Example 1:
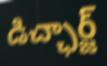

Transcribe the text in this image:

డిచ్ఛార్జ్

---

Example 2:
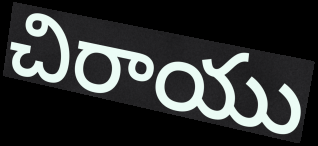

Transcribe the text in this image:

చిరాయు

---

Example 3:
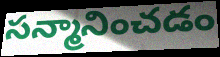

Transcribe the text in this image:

సన్మానించడం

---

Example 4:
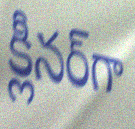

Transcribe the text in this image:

క్లీనర్‌గా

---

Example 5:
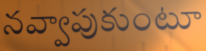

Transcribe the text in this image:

నవ్వాపుకుంటూ